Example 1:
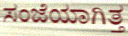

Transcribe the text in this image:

ಸಂಜೆಯಾಗಿತ್ತ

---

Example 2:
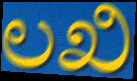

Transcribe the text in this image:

ಲಖಿ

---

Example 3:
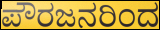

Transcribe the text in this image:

ಪೌರಜನರಿಂದ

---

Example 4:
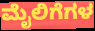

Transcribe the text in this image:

ಮೈಲಿಗೆಗಳ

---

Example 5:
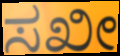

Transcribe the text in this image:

ಸಖೀ